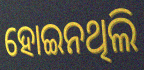
ହୋଇନଥିଲି